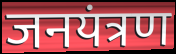
जनयंत्रण